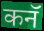
कनॅ